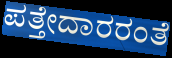
ಪತ್ತೇದಾರರಂತೆ